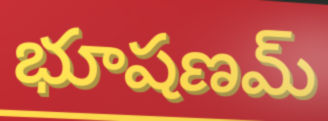
భూషణమ్